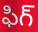
ఫిగ్